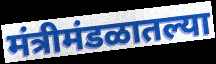
मंत्रीमंडळातल्या